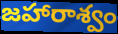
జహారాశ్వం